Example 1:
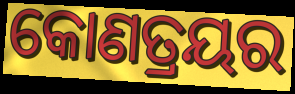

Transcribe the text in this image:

କୋଣତ୍ରୟର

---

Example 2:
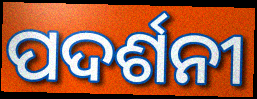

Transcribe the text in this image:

ପଦର୍ଶନୀ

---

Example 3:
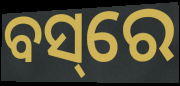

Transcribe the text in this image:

ବସ୍‌ରେ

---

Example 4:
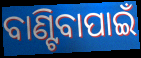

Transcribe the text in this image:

ବାଣ୍ଟିବାପାଇଁ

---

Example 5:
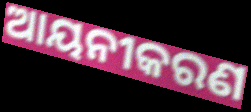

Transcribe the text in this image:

ଆୟନୀକରଣ